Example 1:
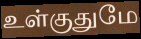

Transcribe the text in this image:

உள்குதுமே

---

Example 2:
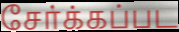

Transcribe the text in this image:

சேர்க்கப்பட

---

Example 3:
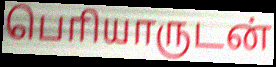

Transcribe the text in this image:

பெரியாருடன்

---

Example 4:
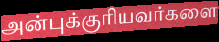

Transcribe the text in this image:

அன்புக்குரியவர்களை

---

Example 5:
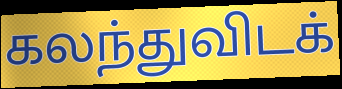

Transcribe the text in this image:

கலந்துவிடக்